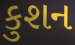
કુશન